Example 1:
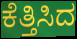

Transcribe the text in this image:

ಕೆತ್ತಿಸಿದ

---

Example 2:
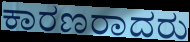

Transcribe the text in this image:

ಕಾರಣರಾದರು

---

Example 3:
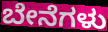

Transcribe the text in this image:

ಬೇನೆಗಳು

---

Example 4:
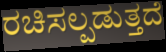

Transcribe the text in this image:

ರಚಿಸಲ್ಪಡುತ್ತದೆ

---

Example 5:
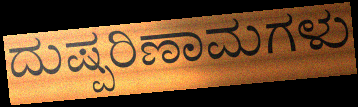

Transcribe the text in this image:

ದುಷ್ಪರಿಣಾಮಗಳು